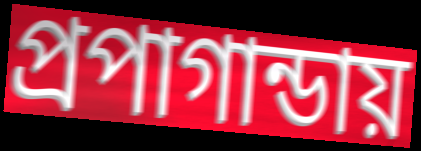
প্রপাগান্ডায়